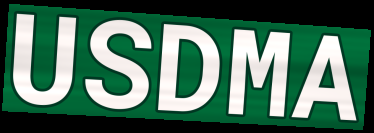
USDMA